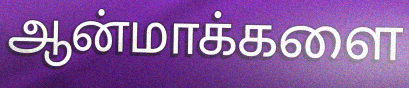
ஆன்மாக்களை